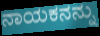
ನಾಯಕನನ್ನು